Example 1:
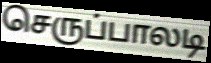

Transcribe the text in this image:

செருப்பாலடி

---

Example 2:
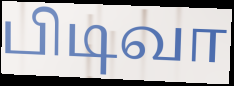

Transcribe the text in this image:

பிடிவா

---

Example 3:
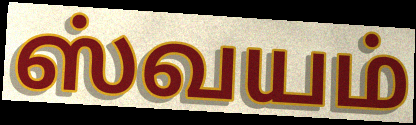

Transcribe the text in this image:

ஸ்வயம்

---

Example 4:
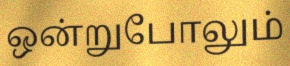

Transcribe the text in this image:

ஒன்றுபோலும்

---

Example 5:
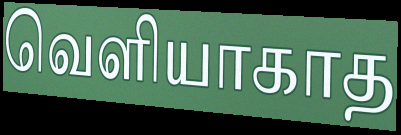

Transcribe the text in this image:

வெளியாகாத